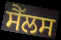
ਸੈੱਲਸ